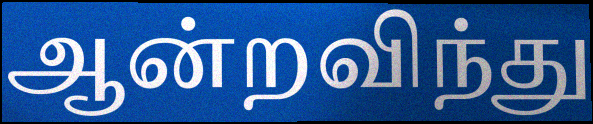
ஆன்றவிந்து